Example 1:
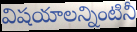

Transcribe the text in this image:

విషయాలన్నింటినీ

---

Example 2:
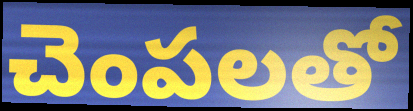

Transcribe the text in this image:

చెంపలతో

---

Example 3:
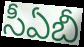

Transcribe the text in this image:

సీఏబీ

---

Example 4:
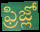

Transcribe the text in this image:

ఫ్రిజ్లో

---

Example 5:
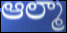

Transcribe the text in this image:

ఆల్మా